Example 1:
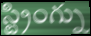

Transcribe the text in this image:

స్ట్రింగ్ను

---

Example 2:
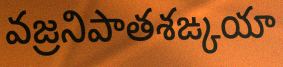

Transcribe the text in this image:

వజ్రనిపాతశఙ్కయా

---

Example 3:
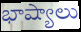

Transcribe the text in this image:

భాష్యాలు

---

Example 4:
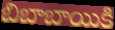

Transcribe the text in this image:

బిబాబాయికి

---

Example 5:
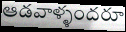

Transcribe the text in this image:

ఆడవాళ్ళందరూ